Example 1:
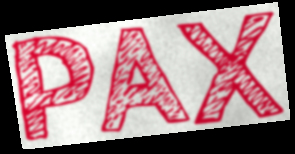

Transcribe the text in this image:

PAX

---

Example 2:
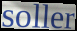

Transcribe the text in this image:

soller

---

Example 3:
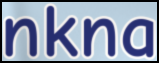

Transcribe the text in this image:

nkna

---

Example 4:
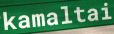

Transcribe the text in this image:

kamaltai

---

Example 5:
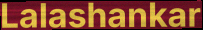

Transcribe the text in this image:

Lalashankar